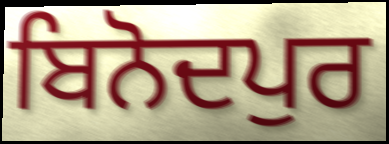
ਬਿਨੋਦਪੁਰ